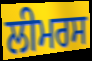
ਲੀਮਰਸ